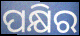
ପକ୍ଷିର